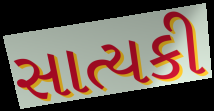
સાત્યકી